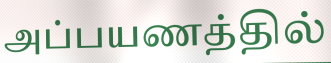
அப்பயணத்தில்